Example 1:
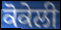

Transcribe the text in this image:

ਕੋਕੇਲੀ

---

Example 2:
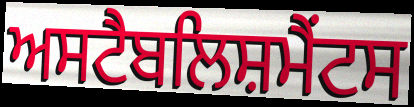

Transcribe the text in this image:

ਅਸਟੈਬਲਿਸ਼ਮੈਂਟਸ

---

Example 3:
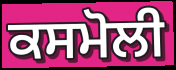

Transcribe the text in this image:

ਕਸਮੋਲੀ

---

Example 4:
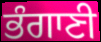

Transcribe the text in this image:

ਭੰਗਾਣੀ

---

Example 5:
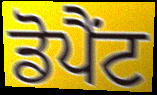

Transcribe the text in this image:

ਡੋਪੈਂਟ